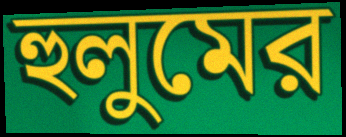
হুলুমের